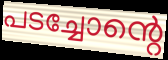
പടച്ചോന്റെ